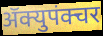
ॲक्युपंक्चर